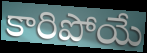
కారిపోయే